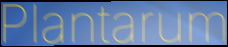
Plantarum